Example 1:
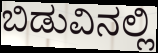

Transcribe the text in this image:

ಬಿಡುವಿನಲ್ಲಿ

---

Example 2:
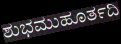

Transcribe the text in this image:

ಶುಭಮುಹೂರ್ತದಿ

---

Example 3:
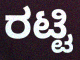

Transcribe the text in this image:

ರಟ್ಟಿ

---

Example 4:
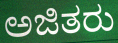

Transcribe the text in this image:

ಅಜಿತರು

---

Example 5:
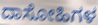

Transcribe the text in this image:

ದಾಸೋಹಿಗಳ